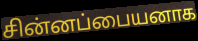
சின்னப்பையனாக